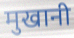
मुखानी